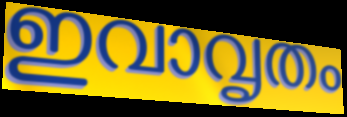
ഇവാവൃതം